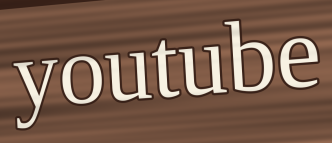
youtube